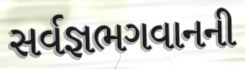
સર્વજ્ઞભગવાનની